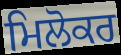
ਮਿਲੋਕਰ